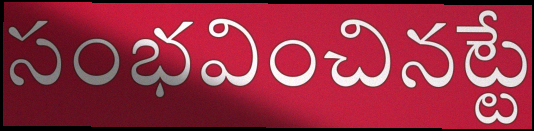
సంభవించినట్టే